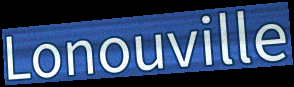
Lonouville